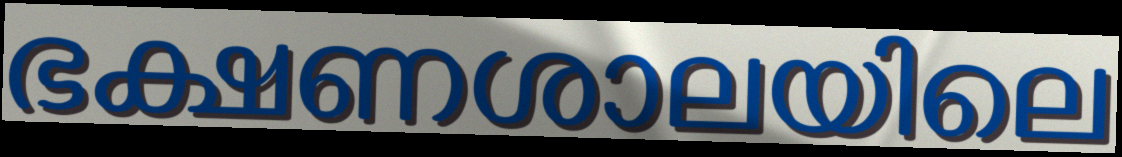
ഭക്ഷണശാലയിലെ